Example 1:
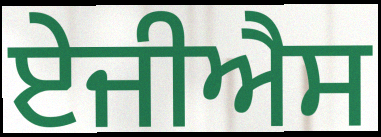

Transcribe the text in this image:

ਏਜੀਐਸ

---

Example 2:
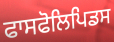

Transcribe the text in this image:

ਫਾਸਫੋਲਿਪਿਡਸ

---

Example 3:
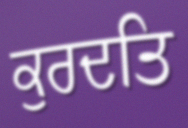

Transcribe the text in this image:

ਕੁਰਦਤਿ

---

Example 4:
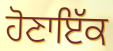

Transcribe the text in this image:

ਹੋਣਾਇੱਕ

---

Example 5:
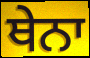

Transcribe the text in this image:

ਥੇਨਾ